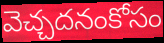
వెచ్చదనంకోసం